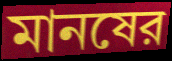
মানষের